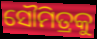
ସୌମିତ୍ରକୁ